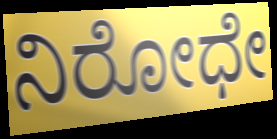
ನಿರೋಧೇ